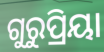
ଗୁରୁପ୍ରିୟା